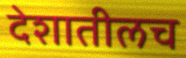
देशातीलच